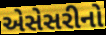
એસેસરીનો